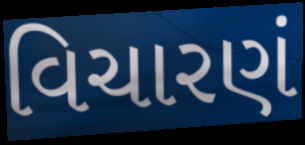
વિચારણં